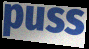
puss